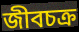
জীবচক্র